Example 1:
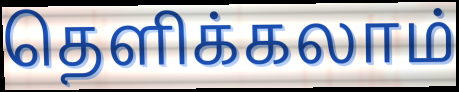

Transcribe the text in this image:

தெளிக்கலாம்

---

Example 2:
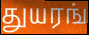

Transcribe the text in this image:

துயரங்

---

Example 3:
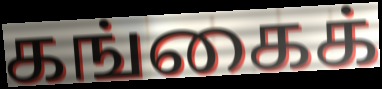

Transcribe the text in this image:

கங்கைக்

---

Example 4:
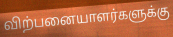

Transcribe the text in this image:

விற்பனையாளர்களுக்கு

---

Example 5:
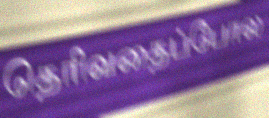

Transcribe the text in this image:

தெரிவதைப்போல